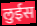
लुईस